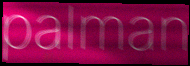
palman